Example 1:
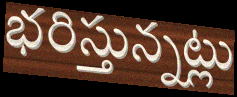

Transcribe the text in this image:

భరిస్తున్నట్లు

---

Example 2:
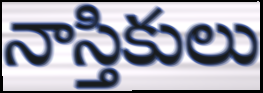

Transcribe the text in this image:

నాస్తికులు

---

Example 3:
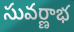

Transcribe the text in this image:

సువర్ణాభ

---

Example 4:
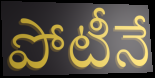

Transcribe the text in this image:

పోటీనే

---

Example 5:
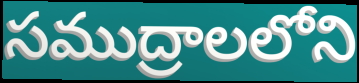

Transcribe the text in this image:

సముద్రాలలోని